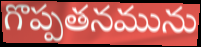
గొప్పతనమును